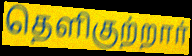
தெளிகுற்றார்